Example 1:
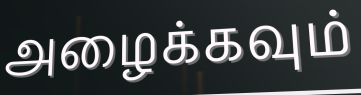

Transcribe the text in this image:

அழைக்கவும்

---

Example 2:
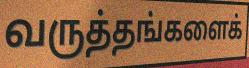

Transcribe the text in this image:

வருத்தங்களைக்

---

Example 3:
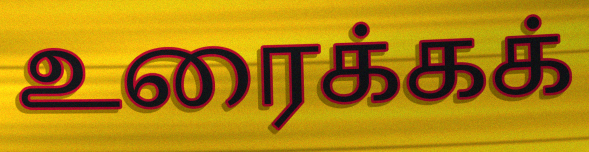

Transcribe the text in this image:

உரைக்கக்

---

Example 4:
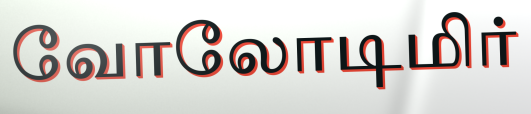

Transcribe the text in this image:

வோலோடிமிர்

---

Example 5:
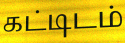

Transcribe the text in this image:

கட்டிடம்